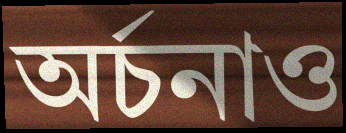
অর্চনাও